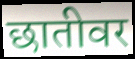
छातीवर